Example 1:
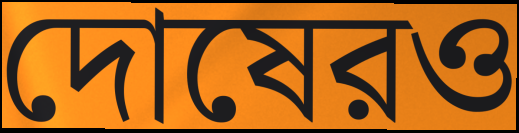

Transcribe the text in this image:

দোষেরও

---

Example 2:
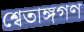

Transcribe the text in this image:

শ্বেতাঙ্গগণ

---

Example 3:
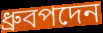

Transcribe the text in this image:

ধ্রুবপদেন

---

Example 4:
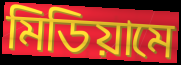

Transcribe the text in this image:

মিডিয়ামে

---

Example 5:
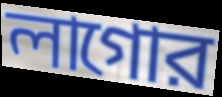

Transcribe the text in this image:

লাগোর